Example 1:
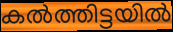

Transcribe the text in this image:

കൽത്തിട്ടയിൽ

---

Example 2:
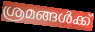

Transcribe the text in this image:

ശ്രമങ്ങൾക്ക്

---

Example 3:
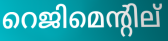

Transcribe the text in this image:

റെജിമെന്റില്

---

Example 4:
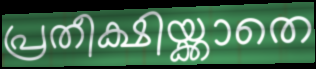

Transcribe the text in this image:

പ്രതീക്ഷിയ്ക്കാതെ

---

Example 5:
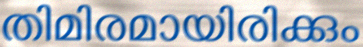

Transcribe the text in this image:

തിമിരമായിരിക്കും